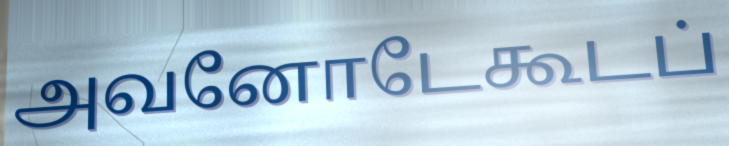
அவனோடேகூடப்